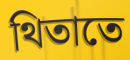
থিতাতে